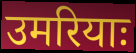
उमरियाः